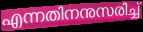
എന്നതിനനുസരിച്ച്